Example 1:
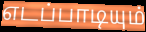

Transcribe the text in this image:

எடப்பாடியும்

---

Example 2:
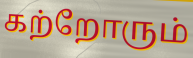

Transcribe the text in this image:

கற்றோரும்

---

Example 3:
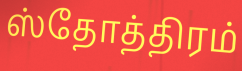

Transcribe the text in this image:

ஸ்தோத்திரம்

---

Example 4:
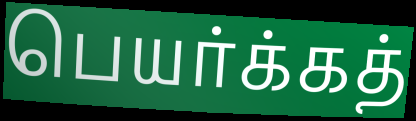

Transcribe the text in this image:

பெயர்க்கத்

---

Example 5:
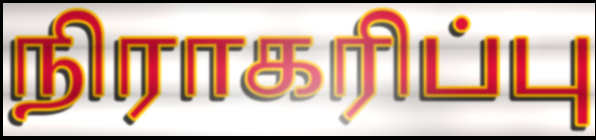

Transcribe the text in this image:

நிராகரிப்பு